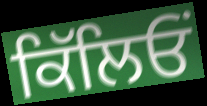
ਕਿੱਲਿਓਂ